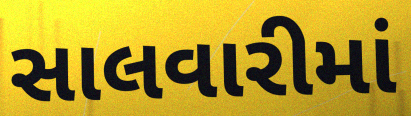
સાલવારીમાં